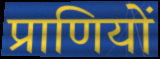
प्राणियों